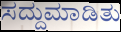
ಸದ್ದುಮಾಡಿತು